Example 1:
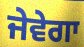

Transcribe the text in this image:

ਜੇਵੇਗਾ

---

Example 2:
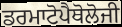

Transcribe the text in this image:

ਡਰਮਾਟੋਪੈਥੋਲੋਜੀ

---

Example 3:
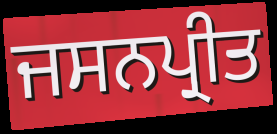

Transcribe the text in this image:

ਜਸਨਪ੍ਰੀਤ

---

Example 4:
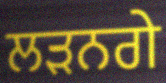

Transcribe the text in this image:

ਲੜਨਗੇ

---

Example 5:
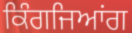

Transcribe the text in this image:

ਕਿੰਗਜਿਆਂਗ